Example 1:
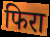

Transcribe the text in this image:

फिरा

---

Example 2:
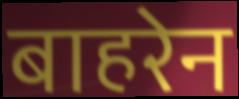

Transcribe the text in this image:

बाहरेन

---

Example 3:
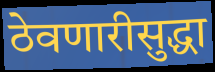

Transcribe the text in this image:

ठेवणारीसुद्धा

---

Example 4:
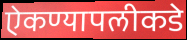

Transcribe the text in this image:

ऐकण्यापलीकडे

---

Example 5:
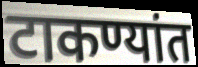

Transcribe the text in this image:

टाकण्यांत